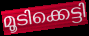
മൂടിക്കെട്ടി